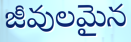
జీవులమైన